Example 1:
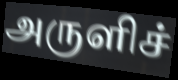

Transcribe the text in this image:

அருளிச்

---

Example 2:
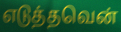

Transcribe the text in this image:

எடுத்தவென்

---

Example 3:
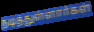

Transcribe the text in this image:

நடித்துள்ளார்கள்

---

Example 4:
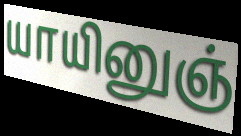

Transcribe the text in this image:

யாயினுஞ்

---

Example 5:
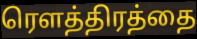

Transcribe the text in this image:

ரௌத்திரத்தை